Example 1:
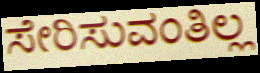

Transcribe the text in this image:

ಸೇರಿಸುವಂತಿಲ್ಲ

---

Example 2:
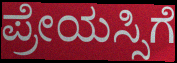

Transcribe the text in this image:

ಪ್ರೇಯಸ್ಸಿಗೆ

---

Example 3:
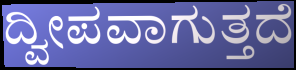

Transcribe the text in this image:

ದ್ವೀಪವಾಗುತ್ತದೆ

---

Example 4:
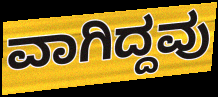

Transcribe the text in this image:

ವಾಗಿದ್ದವು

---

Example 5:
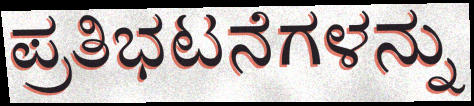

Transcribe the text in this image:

ಪ್ರತಿಭಟನೆಗಳನ್ನು